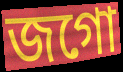
জগো